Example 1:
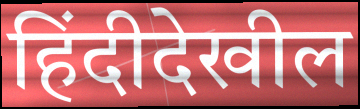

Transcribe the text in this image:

हिंदीदेखील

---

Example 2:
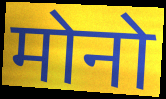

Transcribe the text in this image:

मोनो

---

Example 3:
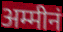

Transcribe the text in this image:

अम्मीनं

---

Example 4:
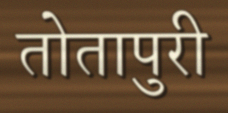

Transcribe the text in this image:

तोतापुरी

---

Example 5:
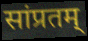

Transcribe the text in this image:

सांप्रतम्